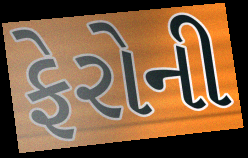
ફેરોની